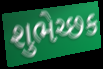
શુભેચ્છક